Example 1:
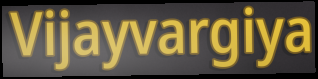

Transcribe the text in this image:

Vijayvargiya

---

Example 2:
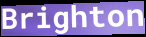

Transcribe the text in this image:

Brighton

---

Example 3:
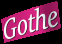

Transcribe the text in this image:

Gothe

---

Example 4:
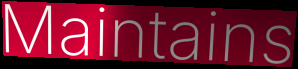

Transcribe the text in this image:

Maintains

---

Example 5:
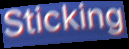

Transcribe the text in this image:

Sticking